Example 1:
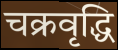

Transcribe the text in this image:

चक्रवृद्धि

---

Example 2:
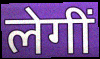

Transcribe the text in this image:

लेगीं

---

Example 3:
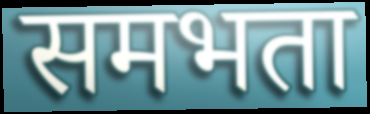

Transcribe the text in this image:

समभता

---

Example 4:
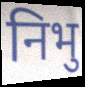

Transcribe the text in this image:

निभु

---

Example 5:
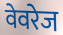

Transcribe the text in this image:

वेवरेज